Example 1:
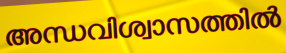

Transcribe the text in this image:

അന്ധവിശ്വാസത്തിൽ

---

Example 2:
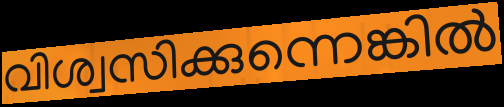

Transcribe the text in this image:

വിശ്വസിക്കുന്നെങ്കിൽ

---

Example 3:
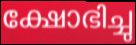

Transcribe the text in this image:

ക്ഷോഭിച്ചു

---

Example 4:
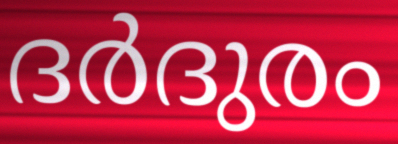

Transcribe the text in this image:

ദർദുരം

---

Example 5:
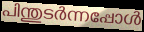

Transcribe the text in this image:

പിന്തുടർന്നപ്പോൾ